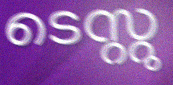
ടെസ്റ്റു